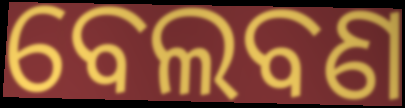
ବେଲବଣ